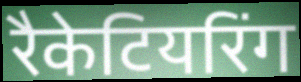
रैकेटियरिंग